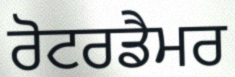
ਰੋਟਰਡੈਮਰ